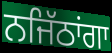
ਨਜਿੱਠਾਂਗਾ